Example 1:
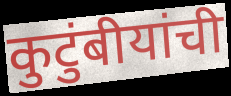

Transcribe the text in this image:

कुटुंबीयांची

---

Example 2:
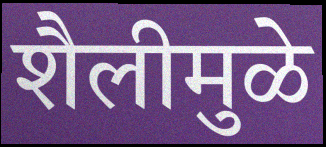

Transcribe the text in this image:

शैलीमुळे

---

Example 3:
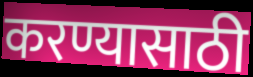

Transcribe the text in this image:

करण्यासाठी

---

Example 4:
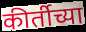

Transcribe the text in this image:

कीर्तीच्या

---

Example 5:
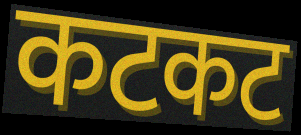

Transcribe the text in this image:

कटकट